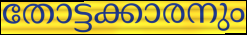
തോട്ടക്കാരനും